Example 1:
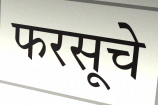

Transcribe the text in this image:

फरसूचे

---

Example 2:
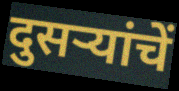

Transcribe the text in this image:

दुसऱ्यांचें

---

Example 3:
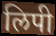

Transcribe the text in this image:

लिपी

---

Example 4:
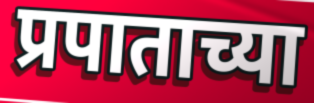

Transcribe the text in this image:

प्रपाताच्या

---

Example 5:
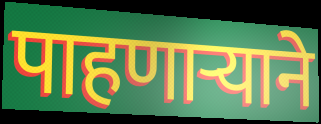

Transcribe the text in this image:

पाहणार्‍याने